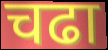
चढा